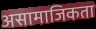
असामाजिकता